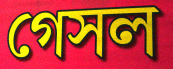
গেসল